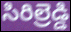
సిరిల్రెడ్డి